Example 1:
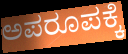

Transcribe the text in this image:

ಅಪರೂಪಕ್ಕೆ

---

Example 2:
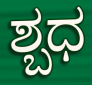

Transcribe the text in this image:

ಶ್ಬಧ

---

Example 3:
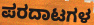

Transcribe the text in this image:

ಪರದಾಟಗಳ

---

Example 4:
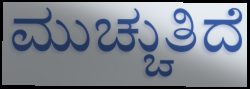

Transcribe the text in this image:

ಮುಚ್ಚುತಿದೆ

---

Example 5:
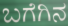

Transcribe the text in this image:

ಬಗೆಗಿನ